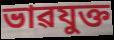
ভাৱযুক্ত